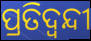
ପ୍ରତିଦ୍ଵନ୍ଦୀ